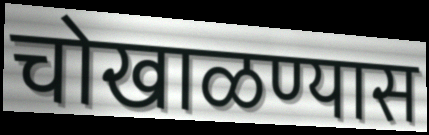
चोखाळण्यास